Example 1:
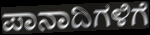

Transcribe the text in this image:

ಪಾನಾದಿಗಳಿಗೆ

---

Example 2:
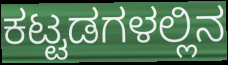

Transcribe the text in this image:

ಕಟ್ಟಡಗಳಲ್ಲಿನ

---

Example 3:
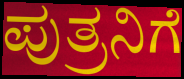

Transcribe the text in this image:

ಪುತ್ರನಿಗೆ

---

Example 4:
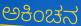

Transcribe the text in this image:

ಅಕಿಂಚನ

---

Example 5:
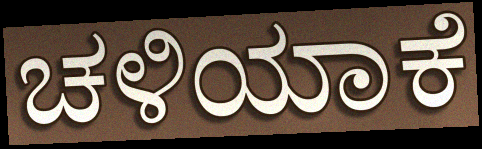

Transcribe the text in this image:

ಚಳಿಯಾಕೆ